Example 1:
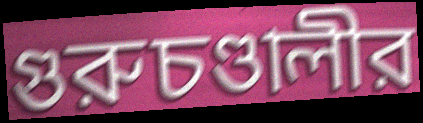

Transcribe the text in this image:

গুরুচণ্ডালীর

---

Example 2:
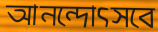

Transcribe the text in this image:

আনন্দোৎসবে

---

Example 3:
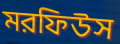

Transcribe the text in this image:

মরফিউস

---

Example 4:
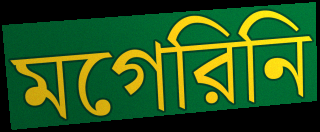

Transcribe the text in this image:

মগেরিনি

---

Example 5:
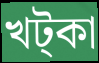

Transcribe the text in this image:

খট্কা